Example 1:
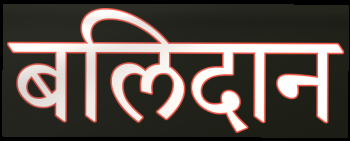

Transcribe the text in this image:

बलिदान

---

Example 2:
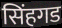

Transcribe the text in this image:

सिंहगड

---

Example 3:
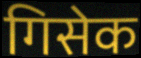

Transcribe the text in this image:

गिसेक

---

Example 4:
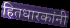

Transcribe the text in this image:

हितधारकांनी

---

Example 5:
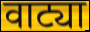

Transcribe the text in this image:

वाट्या